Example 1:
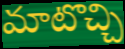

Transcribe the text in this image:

మాటొచ్చి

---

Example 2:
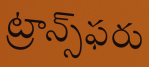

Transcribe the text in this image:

ట్రాన్స్‌ఫరు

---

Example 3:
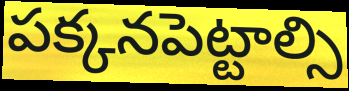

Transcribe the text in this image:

పక్కనపెట్టాల్సి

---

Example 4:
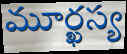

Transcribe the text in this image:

మూర్ఖస్య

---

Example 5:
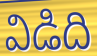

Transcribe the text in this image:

విడిది